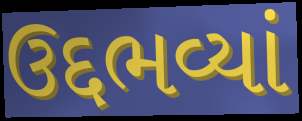
ઉદ્દભવ્યાં